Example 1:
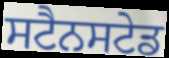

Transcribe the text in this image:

ਸਟੈਨਸਟੇਡ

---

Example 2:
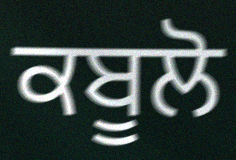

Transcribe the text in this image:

ਕਬੂਲੋ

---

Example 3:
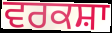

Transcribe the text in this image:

ਵਰਕਸ਼ਾ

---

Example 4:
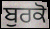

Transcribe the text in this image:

ਬੁਰਕੋ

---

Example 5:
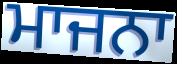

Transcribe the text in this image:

ਮਾਜਨਾ